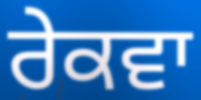
ਰੇਕਵਾ